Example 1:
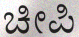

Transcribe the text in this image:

ಚೀಪಿ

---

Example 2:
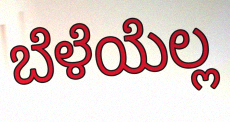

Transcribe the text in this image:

ಬೆಳೆಯೆಲ್ಲ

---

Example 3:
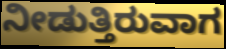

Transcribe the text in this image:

ನೀಡುತ್ತಿರುವಾಗ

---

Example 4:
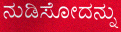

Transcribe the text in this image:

ನುಡಿಸೋದನ್ನು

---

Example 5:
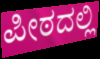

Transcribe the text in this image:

ಪೀಠದಲ್ಲಿ